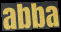
abba